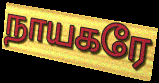
நாயகரே